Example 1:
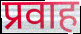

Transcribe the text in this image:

प्रवाह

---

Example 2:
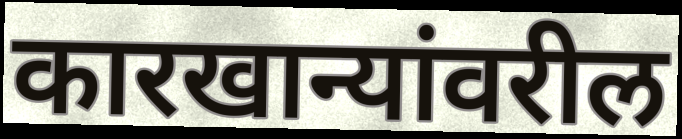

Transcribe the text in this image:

कारखान्यांवरील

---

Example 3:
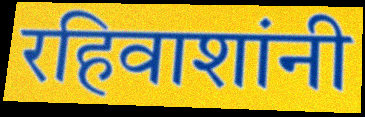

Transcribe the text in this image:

रहिवाशांनी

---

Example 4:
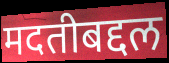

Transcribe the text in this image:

मदतीबद्दल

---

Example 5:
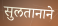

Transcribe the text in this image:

सुलतानाने